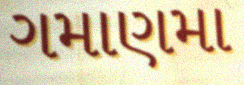
ગમાણમા